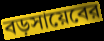
বড়সায়েবের